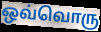
ஒவ்வொரு